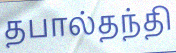
தபால்தந்தி